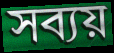
সব্যয়